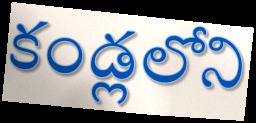
కండ్లలోని